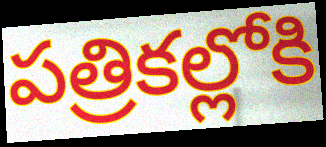
పత్రికల్లోకి